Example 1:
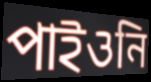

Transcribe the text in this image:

পাইওনি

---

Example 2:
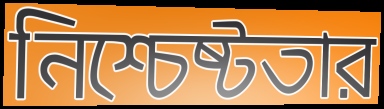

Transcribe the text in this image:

নিশ্চেষ্টতার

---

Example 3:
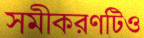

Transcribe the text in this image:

সমীকরণটিও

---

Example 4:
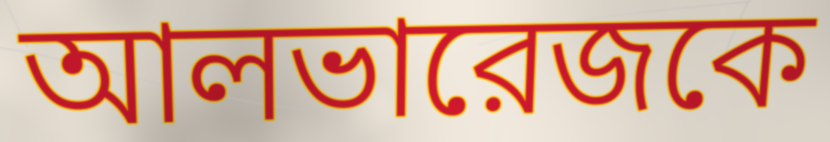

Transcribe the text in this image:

আলভারেজকে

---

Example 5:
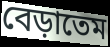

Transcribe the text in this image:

বেড়াতেম